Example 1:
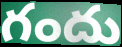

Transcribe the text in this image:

గందు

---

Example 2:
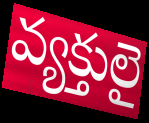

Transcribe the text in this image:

వ్యక్తులై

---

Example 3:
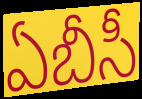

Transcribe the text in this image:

ఏబీసీ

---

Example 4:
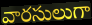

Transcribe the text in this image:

వారసులుగా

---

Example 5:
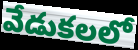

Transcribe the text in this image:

వేడుకలలో